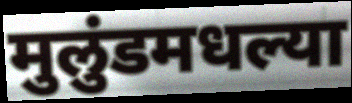
मुलुंडमधल्या